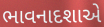
ભાવનાદશાએ